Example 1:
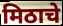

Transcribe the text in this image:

मिठाचे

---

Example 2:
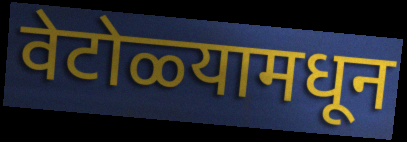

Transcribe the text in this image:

वेटोळ्यामधून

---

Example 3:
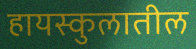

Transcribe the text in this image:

हायस्कुलातील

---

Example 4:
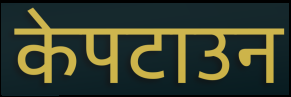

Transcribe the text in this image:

केपटाउन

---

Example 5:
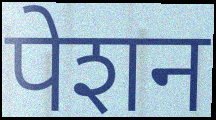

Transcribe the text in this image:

पेशन